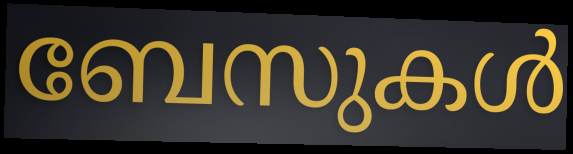
ബേസുകൾ